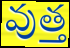
వుత్త